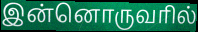
இன்னொருவரில்